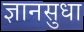
ज्ञानसुधा